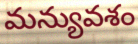
మన్యువశం